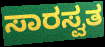
ಸಾರಸ್ವತ